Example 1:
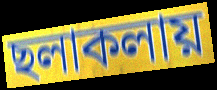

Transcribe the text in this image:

ছলাকলায়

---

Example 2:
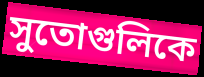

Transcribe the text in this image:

সুতোগুলিকে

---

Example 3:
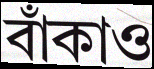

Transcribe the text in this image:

বাঁকাও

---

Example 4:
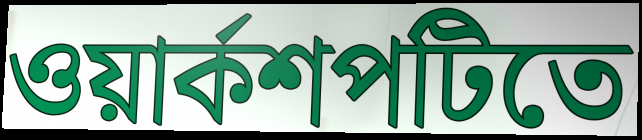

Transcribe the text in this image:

ওয়ার্কশপটিতে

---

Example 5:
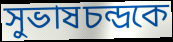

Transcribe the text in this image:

সুভাষচন্দ্রকে